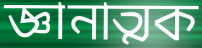
জ্ঞানাত্মক